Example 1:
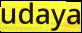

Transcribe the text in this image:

udaya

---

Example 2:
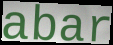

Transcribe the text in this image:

abar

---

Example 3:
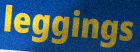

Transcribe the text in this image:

leggings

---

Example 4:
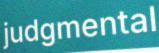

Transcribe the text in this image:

judgmental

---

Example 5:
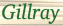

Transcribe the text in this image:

Gillray